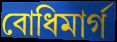
বোধিমার্গ